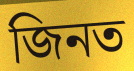
জিনত